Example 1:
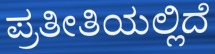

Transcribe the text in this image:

ಪ್ರತೀತಿಯಲ್ಲಿದೆ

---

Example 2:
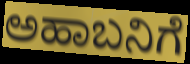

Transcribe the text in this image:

ಅಹಾಬನಿಗೆ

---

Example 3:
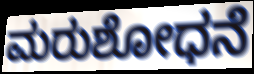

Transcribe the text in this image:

ಮರುಶೋಧನೆ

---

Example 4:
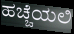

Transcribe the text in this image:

ಹಚ್ಚೆಯಲಿ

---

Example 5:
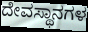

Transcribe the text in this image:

ದೇವಸ್ಥಾನಗಳ